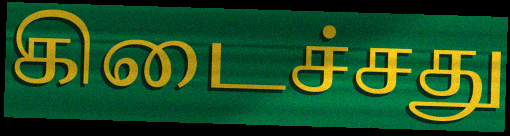
கிடைச்சது